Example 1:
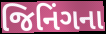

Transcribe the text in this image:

જિનિંગના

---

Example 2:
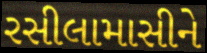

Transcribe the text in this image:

રસીલામાસીને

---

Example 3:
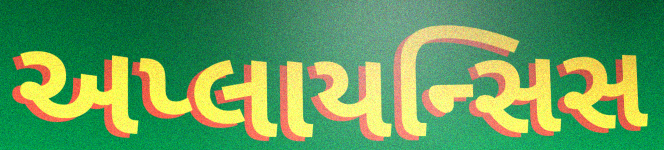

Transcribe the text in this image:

અપ્લાયન્સિસ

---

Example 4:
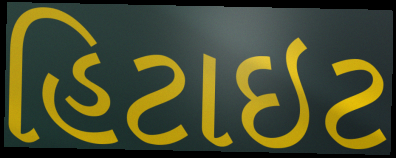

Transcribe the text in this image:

હિટાઇટ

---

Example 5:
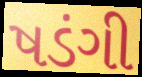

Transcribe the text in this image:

ષડંગી